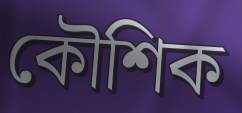
কৌশিক